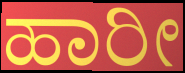
ಹಾರೀ